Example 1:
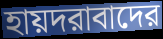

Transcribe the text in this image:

হায়দরাবাদের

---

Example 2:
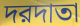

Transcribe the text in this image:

দরদাতা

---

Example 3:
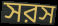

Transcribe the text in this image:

সরস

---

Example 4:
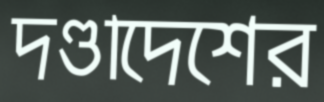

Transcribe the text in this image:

দণ্ডাদেশের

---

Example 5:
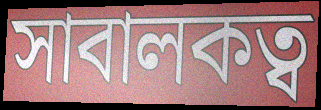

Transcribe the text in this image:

সাবালকত্ব